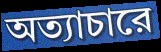
অত্যাচারে